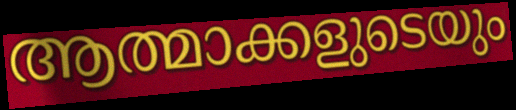
ആത്മാക്കളുടെയും